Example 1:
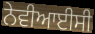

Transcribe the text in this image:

ਨੇਵੀਆਈਸੀ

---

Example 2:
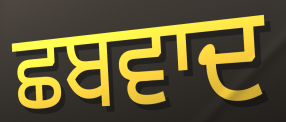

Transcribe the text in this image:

ਛਬਵਾਦ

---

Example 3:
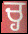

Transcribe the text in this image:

ਚ੍ਹ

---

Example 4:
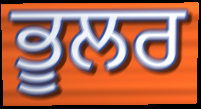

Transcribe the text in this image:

ਭੂਲਰ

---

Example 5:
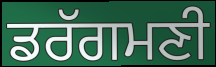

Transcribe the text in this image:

ਡਰੱਗਮਣੀ